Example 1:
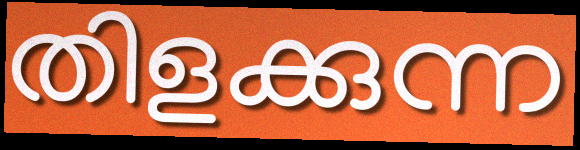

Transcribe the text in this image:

തിളക്കുന്ന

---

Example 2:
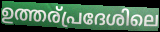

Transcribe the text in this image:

ഉത്തര്പ്രദേശിലെ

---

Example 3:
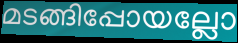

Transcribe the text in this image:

മടങ്ങിപ്പോയല്ലോ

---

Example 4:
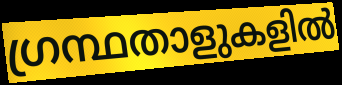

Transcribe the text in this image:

ഗ്രന്ഥതാളുകളിൽ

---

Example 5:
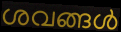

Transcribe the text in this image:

ശവങ്ങൾ